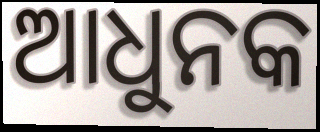
ଆଧୁନକ